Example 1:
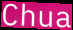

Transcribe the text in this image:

Chua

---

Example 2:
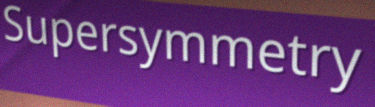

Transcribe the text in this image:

Supersymmetry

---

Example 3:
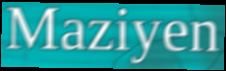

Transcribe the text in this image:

Maziyen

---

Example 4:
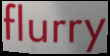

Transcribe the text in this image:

flurry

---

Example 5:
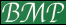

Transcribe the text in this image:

BMP